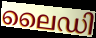
ലൈഡി